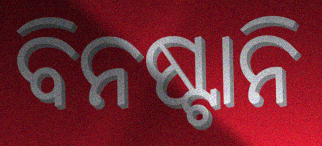
ବିନଷ୍ଟାନି